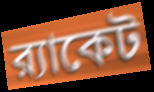
র‍্যাকেট